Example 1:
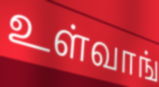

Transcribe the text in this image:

உள்வாங்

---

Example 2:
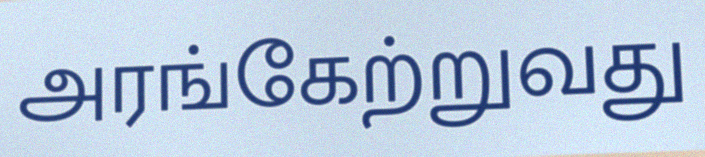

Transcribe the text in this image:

அரங்கேற்றுவது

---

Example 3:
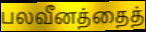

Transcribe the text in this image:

பலவீனத்தைத்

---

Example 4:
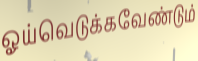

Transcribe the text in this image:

ஓய்வெடுக்கவேண்டும்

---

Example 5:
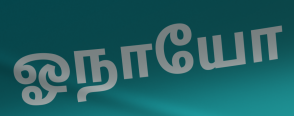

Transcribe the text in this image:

ஓநாயோ